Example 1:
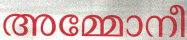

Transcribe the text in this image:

അമ്മോനീ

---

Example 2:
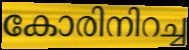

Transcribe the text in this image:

കോരിനിറച്ച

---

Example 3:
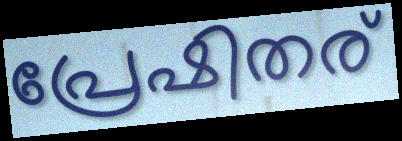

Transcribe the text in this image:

പ്രേഷിതര്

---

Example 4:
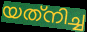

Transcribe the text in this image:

യത്‌നിച്ച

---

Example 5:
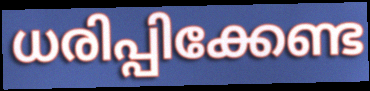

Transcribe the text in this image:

ധരിപ്പിക്കേണ്ട